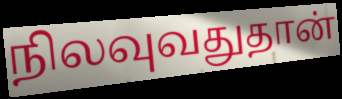
நிலவுவதுதான்